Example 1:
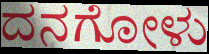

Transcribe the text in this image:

ದನಗೋಳು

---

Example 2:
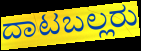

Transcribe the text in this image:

ದಾಟಬಲ್ಲರು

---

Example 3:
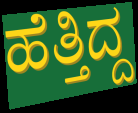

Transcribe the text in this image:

ಹೆತ್ತಿದ್ದ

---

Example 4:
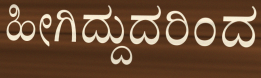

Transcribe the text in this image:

ಹೀಗಿದ್ದುದರಿಂದ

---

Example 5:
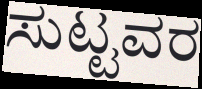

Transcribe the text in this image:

ಸುಟ್ಟವರ